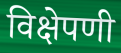
विक्षेपणी